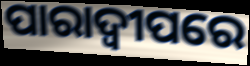
ପାରାଦ୍ୱୀପରେ